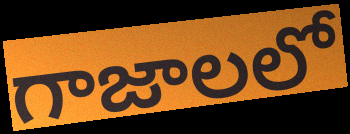
గాజాలలో